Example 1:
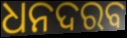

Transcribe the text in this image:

ଧନଦରବ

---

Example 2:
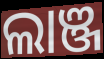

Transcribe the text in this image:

ଲାଞ୍ଜ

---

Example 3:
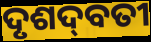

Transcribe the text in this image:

ଦୃଶଦ୍‌ବତୀ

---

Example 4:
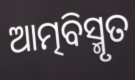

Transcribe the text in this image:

ଆତ୍ମବିସ୍ମୃତ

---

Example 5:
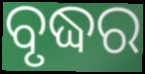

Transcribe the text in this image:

ବୃଦ୍ଧର